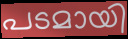
പടമായി